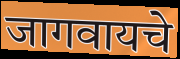
जागवायचे